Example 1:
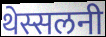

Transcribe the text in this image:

थेस्सलनी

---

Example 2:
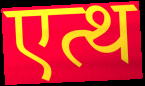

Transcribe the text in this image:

एत्थ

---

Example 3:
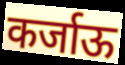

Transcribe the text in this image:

कर्जाऊ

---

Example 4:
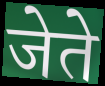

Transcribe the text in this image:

जेते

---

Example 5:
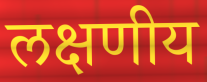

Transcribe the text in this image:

लक्षणीय